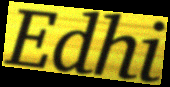
Edhi